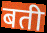
बती